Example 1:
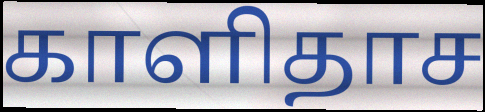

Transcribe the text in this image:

காளிதாச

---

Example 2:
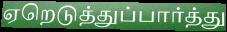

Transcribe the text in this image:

ஏறெடுத்துப்பார்த்து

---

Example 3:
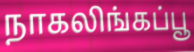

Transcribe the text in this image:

நாகலிங்கப்பூ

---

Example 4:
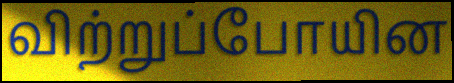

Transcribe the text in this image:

விற்றுப்போயின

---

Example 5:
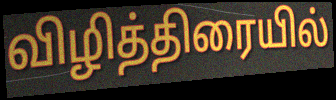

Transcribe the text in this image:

விழித்திரையில்